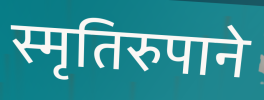
स्मृतिरुपाने